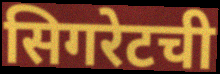
सिगरेटची